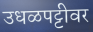
उधळपट्टीवर